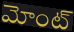
మోంట్